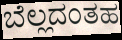
ಬೆಲ್ಲದಂತಹ